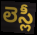
లెస్లీ